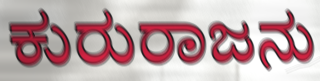
ಕುರುರಾಜನು